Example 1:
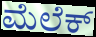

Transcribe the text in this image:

ಮೆಲೆಕ್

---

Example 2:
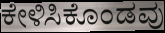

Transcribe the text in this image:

ಕೇಳಿಸಿಕೊಂಡವು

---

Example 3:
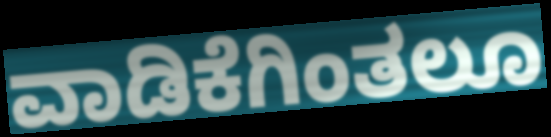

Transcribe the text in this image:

ವಾಡಿಕೆಗಿಂತಲೂ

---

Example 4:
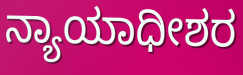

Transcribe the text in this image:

ನ್ಯಾಯಾಧೀಶರ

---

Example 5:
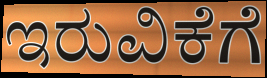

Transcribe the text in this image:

ಇರುವಿಕೆಗೆ